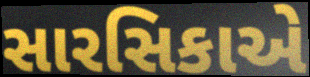
સારસિકાએ